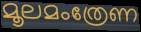
മൂലമംത്രേണ